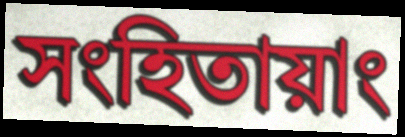
সংহিতায়াং